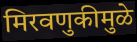
मिरवणुकीमुळे